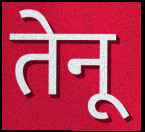
तेनू